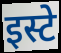
इस्टे